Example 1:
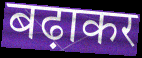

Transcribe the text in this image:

बढ़ाकर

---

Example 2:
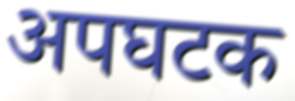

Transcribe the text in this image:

अपघटक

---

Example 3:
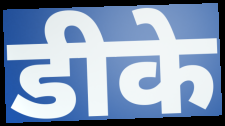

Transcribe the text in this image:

डीके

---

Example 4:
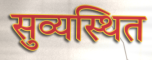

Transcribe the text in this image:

सुव्यस्थित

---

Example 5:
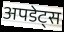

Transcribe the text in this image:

अपडेट्स